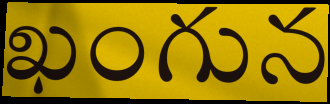
ఖంగున